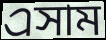
এসাম